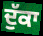
ਦੁੱਕਾ